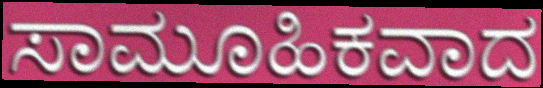
ಸಾಮೂಹಿಕವಾದ